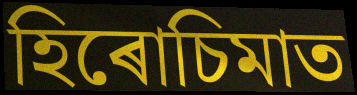
হিৰোচিমাত